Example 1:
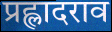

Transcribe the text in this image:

प्रह्लादराव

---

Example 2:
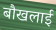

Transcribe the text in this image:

बौखलाई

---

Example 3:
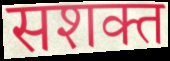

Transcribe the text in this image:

सशक्‍त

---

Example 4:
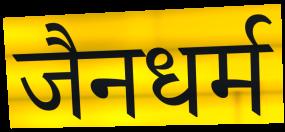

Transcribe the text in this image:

जैनधर्म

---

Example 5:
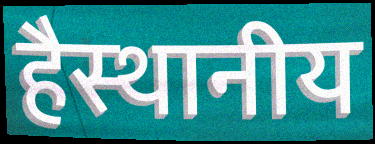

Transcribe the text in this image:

हैस्थानीय